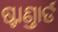
ଷ୍ଟାଣ୍ତାର୍ଡ